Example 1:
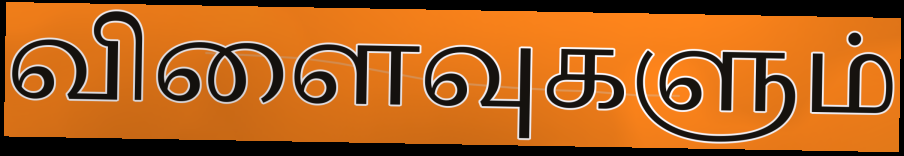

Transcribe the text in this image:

விளைவுகளும்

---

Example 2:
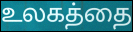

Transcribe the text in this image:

உலகத்தை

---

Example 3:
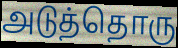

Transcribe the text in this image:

அடுத்தொரு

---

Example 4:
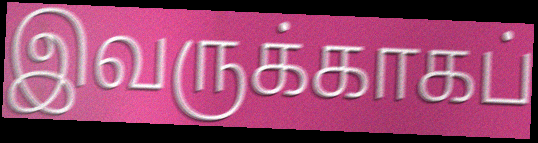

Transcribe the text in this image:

இவருக்காகப்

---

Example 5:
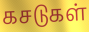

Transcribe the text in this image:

கசடுகள்